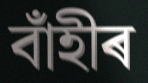
বাঁহীৰ